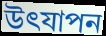
উৎযাপন